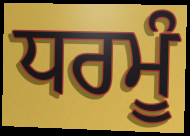
ਧਰਮੂੰ